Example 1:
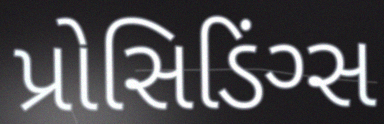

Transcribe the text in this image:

પ્રોસિડિંગ્સ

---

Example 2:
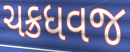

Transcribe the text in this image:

ચક્રધવજ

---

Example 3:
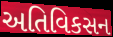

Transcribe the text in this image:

અતિવિકસન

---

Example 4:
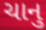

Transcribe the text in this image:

ચાનુ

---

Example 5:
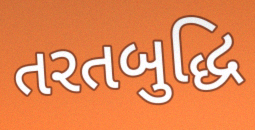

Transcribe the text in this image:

તરતબુદ્ધિ